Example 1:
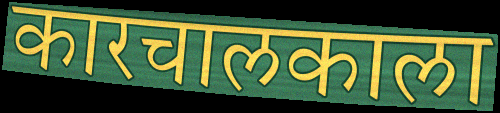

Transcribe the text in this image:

कारचालकाला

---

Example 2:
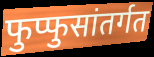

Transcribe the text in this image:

फुप्फुसांतर्गत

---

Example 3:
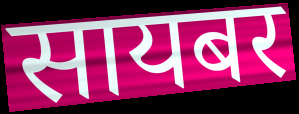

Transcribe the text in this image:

सायबर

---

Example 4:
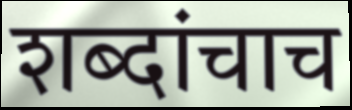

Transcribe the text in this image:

शब्दांचाच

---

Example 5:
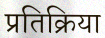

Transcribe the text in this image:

प्रतिक्रिया